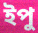
ইপু